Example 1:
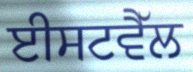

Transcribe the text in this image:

ਈਸਟਵੈੱਲ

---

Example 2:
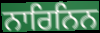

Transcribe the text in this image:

ਨਾਰਿਨਿਨ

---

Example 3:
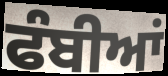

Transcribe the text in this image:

ਫੰਬੀਆਂ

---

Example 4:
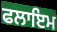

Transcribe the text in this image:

ਫਲਾਇਮ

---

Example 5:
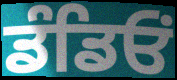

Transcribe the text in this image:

ਡੰਡਿਓਂ